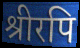
श्रीरपि